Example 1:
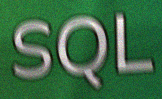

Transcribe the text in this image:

SQL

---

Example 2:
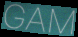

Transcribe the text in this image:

GAM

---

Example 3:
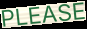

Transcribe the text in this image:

PLEASE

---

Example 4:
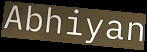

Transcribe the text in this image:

Abhiyan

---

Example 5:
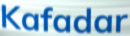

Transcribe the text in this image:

Kafadar